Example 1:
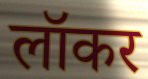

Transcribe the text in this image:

लॉकर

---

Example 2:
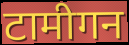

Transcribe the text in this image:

टामीगन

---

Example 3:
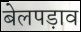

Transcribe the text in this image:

बेलपड़ाव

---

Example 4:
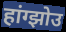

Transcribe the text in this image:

हांग्झोउ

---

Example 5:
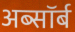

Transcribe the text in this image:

अब्सॉर्ब